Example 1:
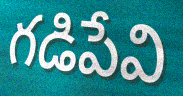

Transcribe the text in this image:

గడిపేవి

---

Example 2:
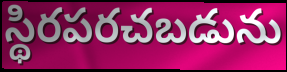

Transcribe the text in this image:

స్థిరపరచబడును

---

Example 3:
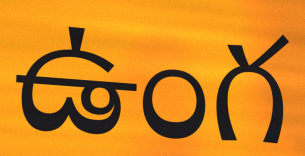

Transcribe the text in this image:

ఉంగ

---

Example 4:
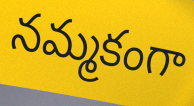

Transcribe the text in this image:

నమ్మకంగా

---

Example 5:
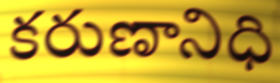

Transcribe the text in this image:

కరుణానిధి